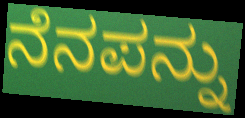
ನೆನಪನ್ನು